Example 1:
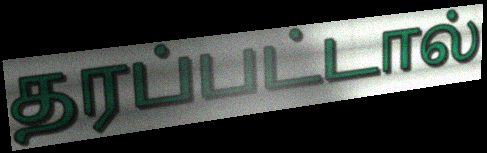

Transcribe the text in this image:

தரப்பட்டால்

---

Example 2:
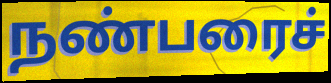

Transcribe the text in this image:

நண்பரைச்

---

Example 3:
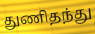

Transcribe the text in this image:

துணிதந்து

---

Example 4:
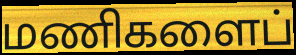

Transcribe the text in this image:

மணிகளைப்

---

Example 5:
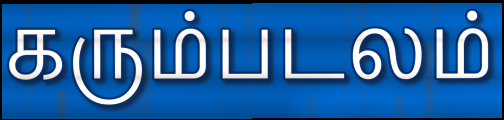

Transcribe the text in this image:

கரும்படலம்